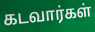
கடவார்கள்